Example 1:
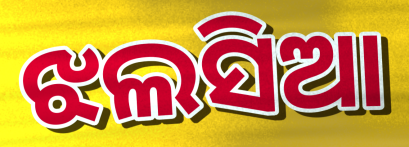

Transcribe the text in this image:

ଝଲସିଆ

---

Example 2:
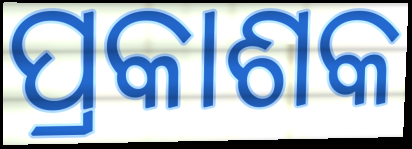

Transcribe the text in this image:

ପ୍ରକାଶକ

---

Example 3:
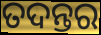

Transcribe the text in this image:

ତଦନ୍ତର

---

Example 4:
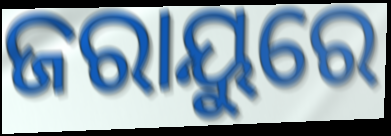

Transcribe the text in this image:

ଜରାୟୁରେ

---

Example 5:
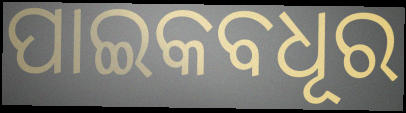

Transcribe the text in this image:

ପାଇକବଧୂର